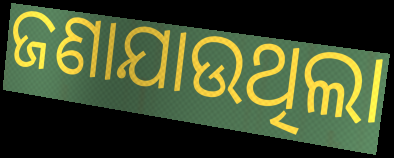
ଜଣାଯାଉଥିଲା